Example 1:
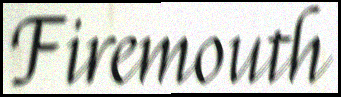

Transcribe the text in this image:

Firemouth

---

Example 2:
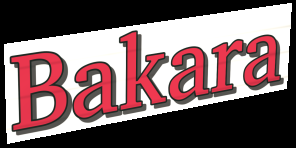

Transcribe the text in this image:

Bakara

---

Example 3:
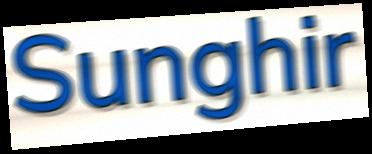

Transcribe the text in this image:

Sunghir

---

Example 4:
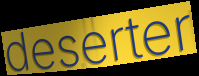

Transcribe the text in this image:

deserter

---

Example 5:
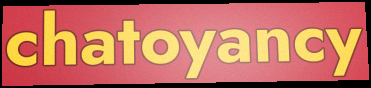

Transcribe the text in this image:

chatoyancy